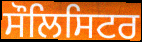
ਸੌਲਿਸਿਟਰ